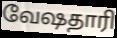
வேஷதாரி